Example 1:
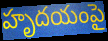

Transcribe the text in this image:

హృదయంపై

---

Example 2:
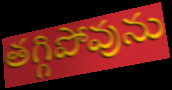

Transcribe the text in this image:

తగ్గిపోవును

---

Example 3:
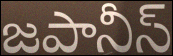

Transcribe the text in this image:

జపానీస్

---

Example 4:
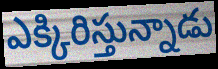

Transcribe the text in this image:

ఎక్కిరిస్తున్నాడు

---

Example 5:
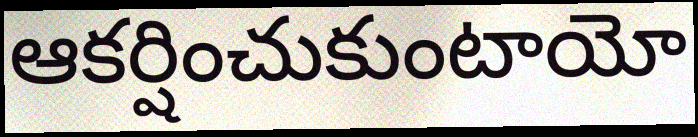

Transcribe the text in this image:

ఆకర్షించుకుంటాయో